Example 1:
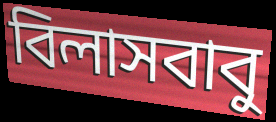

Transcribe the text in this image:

বিলাসবাবু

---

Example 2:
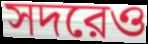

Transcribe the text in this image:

সদরেও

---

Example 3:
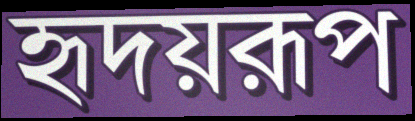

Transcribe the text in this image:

হৃদয়রূপ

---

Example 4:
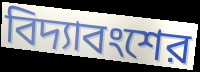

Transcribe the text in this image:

বিদ্যাবংশের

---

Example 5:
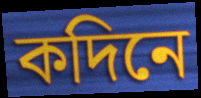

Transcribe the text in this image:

কদিনে